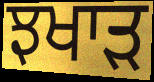
ਝਖਾੜ